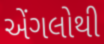
એંગલોથી